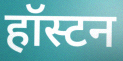
हॉस्टन